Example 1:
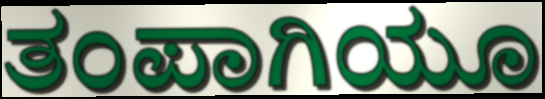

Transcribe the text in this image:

ತಂಪಾಗಿಯೂ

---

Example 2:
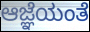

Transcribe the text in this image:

ಆಜ್ಞೆಯಂತೆ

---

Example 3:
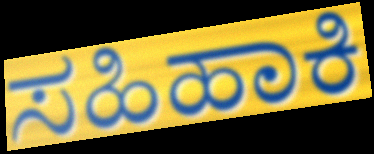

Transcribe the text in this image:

ಸಹಿಹಾಕಿ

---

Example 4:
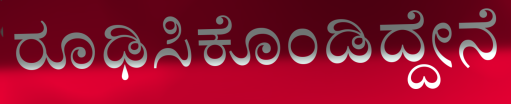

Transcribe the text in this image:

ರೂಢಿಸಿಕೊಂಡಿದ್ದೇನೆ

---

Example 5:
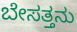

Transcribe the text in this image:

ಬೇಸತ್ತನು